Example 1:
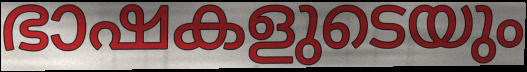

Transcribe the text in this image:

ഭാഷകളുടെയും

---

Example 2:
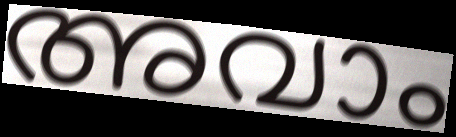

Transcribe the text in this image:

അവാം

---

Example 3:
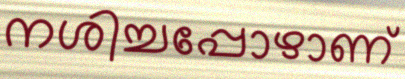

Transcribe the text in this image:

നശിച്ചപ്പോഴാണ്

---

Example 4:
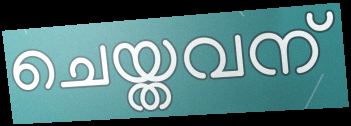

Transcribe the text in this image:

ചെയ്തവന്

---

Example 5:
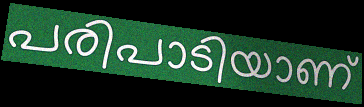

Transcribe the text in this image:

പരിപാടിയാണ്